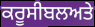
ਕਰੂਸੀਬਲਅਤੇ